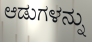
ಆಡುಗಳನ್ನು